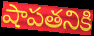
షాపతనికి